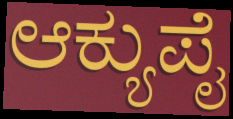
ಆಕ್ಯುಪೈ